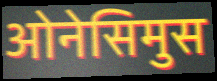
ओनेसिमुस